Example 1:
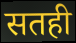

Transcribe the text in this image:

सतही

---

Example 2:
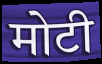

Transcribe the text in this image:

मोटी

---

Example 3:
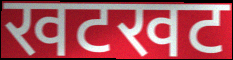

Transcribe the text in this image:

खटखट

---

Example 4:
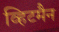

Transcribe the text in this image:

व्हिटमैन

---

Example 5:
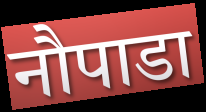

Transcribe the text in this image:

नौपाडा